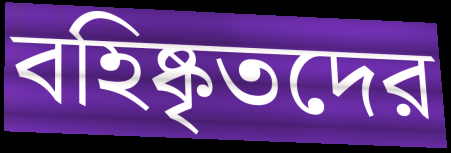
বহিষ্কৃতদের